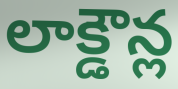
లాక్డౌన్ల